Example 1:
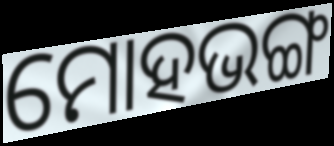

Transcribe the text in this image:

ମୋହଭଙ୍ଗ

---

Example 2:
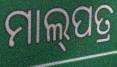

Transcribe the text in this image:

ମାଲ୍‌ପତ୍ର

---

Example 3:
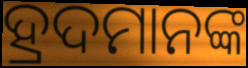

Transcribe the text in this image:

ହ୍ରଦମାନଙ୍କ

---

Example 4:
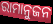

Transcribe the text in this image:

ରାମାନୁଜନ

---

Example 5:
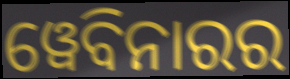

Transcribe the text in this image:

ୱେବିନାରର